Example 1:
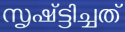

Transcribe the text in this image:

സൃഷ്ട്ടിച്ചത്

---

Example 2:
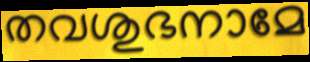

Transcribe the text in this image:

തവശുഭനാമേ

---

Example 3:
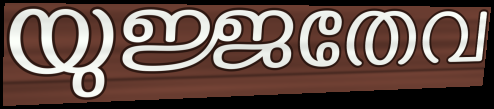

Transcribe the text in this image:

യുജ്ജതേവ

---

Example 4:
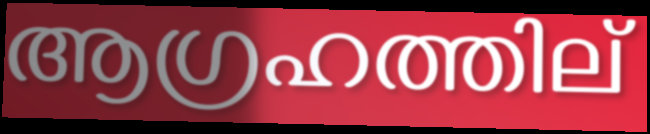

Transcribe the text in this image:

ആഗ്രഹത്തില്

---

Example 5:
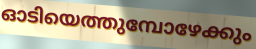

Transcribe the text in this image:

ഓടിയെത്തുമ്പോഴേക്കും